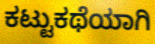
ಕಟ್ಟುಕಥೆಯಾಗಿ